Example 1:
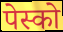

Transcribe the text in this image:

पेस्को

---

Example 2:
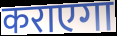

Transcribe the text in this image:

कराएगा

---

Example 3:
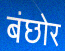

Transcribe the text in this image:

बंछोर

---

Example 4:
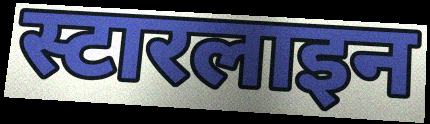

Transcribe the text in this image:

स्टारलाइन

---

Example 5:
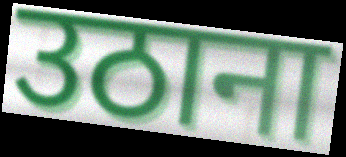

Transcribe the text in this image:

उठाना